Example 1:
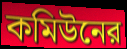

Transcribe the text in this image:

কমিউনের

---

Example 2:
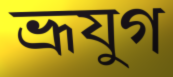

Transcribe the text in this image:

ভ্রূযুগ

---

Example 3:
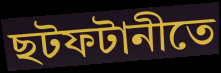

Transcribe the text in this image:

ছটফটানীতে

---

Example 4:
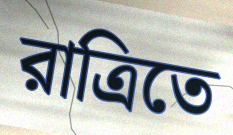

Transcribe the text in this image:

রাত্রিতে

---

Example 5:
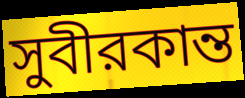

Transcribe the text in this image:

সুবীরকান্ত